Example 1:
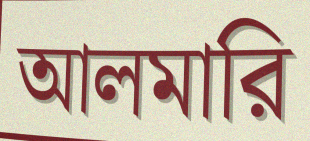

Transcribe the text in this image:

আলমারি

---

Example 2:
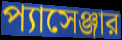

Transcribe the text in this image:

প্যাসেঞ্জার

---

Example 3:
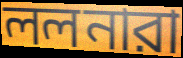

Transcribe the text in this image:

ললনারা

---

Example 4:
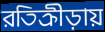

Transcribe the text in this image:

রতিক্রীড়ায়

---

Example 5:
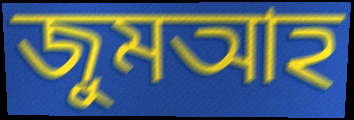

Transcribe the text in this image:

জুমআহ